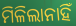
ମିଳିଲାନାହିଁ